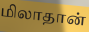
மிலாதான்